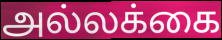
அல்லக்கை